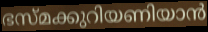
ഭസ്മക്കുറിയണിയാൻ